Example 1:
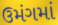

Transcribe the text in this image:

ઉમંગમાં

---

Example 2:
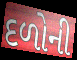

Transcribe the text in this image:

દળોની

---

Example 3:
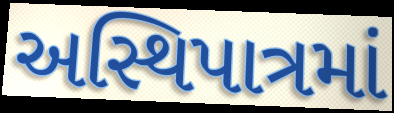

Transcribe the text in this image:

અસ્થિપાત્રમાં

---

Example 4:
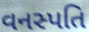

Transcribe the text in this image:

વનસ્પતિ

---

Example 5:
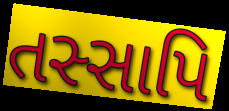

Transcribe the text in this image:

તસ્સાપિ